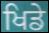
ਖਿਡੇ